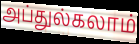
அப்துல்கலாம்